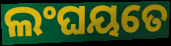
ଲଂଘୟତେ